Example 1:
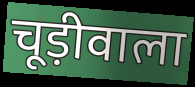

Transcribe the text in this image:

चूड़ीवाला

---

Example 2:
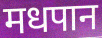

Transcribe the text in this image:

मधपान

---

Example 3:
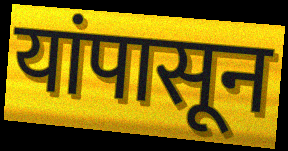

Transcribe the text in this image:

यांपासून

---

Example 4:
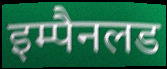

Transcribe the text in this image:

इम्पैनलड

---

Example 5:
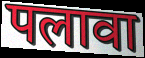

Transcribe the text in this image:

पलावा